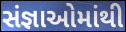
સંજ્ઞાઓમાંથી